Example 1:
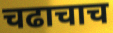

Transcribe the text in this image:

चढाचाच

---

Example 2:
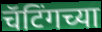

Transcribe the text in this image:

चॅटिंगच्या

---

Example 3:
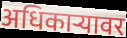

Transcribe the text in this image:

अधिकार्‍यावर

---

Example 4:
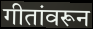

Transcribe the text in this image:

गीतांवरून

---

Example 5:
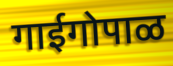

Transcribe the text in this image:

गाईगोपाळ